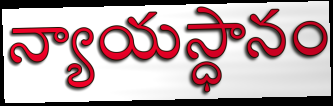
న్యాయస్ధానం